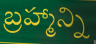
బ్రహ్మాన్ని